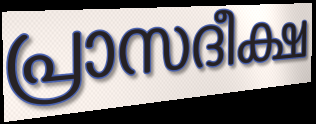
പ്രാസദീക്ഷ